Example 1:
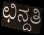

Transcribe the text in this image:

ಛಿನ್ದತಿ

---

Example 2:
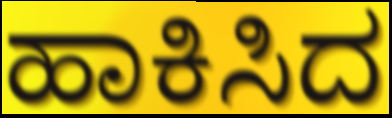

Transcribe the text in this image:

ಹಾಕಿಸಿದ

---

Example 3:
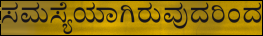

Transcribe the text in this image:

ಸಮಸ್ಯೆಯಾಗಿರುವುದರಿಂದ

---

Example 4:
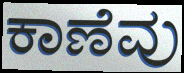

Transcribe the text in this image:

ಕಾಣೆವು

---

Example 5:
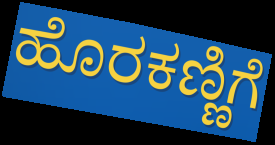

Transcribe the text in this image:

ಹೊರಕಣ್ಣಿಗೆ